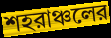
শহরাঞ্চলের